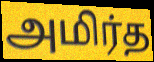
அமிர்த